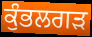
ਕੁੰਭਲਗੜ